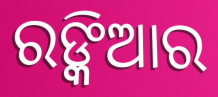
ରଙ୍କିଆର